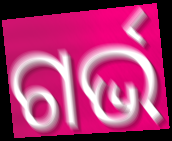
ଗର୍ଭ